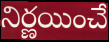
నిర్ణయించే